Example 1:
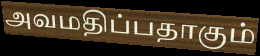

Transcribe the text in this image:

அவமதிப்பதாகும்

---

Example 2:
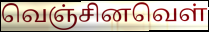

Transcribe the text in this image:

வெஞ்சினவெள்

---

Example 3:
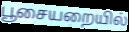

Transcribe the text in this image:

பூசையறையில்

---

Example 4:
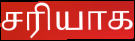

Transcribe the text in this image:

சரியாக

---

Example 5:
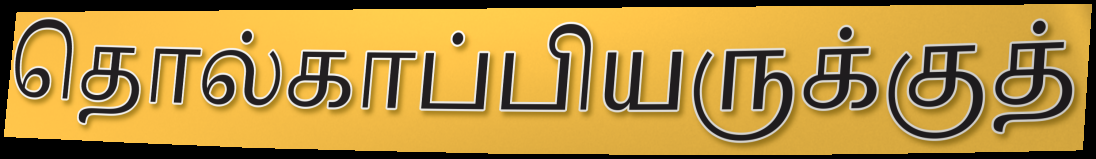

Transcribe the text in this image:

தொல்காப்பியருக்குத்